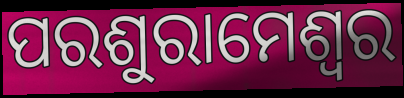
ପରଶୁରାମେଶ୍ୱର